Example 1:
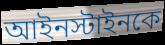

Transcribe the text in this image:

আইনস্টাইনকে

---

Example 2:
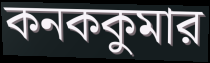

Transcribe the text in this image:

কনককুমার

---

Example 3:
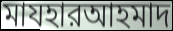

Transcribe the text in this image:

মাযহারআহমাদ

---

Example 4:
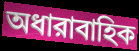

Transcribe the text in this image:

অধারাবাহিক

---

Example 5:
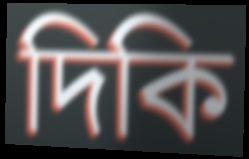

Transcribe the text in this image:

দিকি